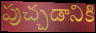
పుచ్చడానికి